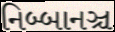
નિબ્બાનઞ્ચ